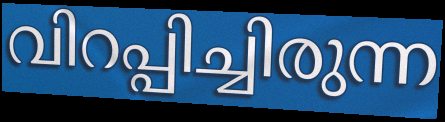
വിറപ്പിച്ചിരുന്ന